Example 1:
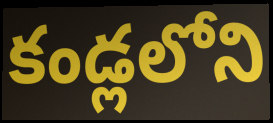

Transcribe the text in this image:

కండ్లలోని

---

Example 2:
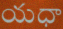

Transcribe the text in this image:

యధా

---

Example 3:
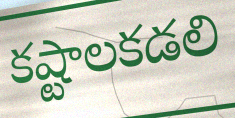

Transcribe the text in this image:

కష్టాలకడలి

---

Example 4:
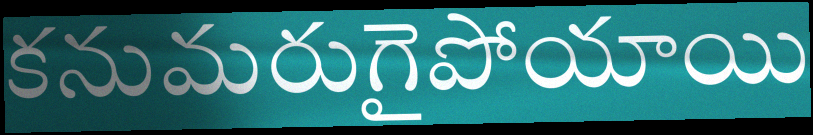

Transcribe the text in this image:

కనుమరుగైపోయాయి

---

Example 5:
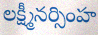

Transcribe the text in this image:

లక్ష్మీనర్సింహ